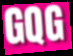
GQG